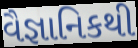
વૈજ્ઞાનિકથી